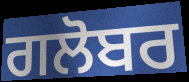
ਗਲੋਬਰ